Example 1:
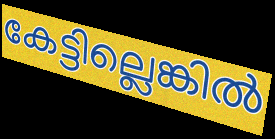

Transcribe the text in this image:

കേട്ടില്ലെങ്കിൽ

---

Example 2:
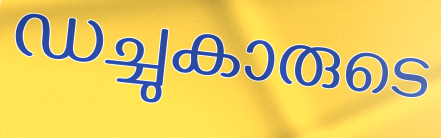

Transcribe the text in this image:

ഡച്ചുകാരുടെ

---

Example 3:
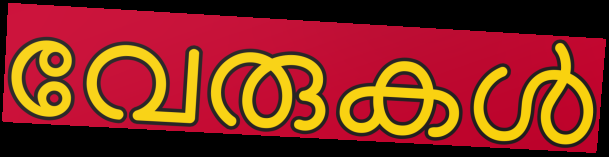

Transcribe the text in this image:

വേരുകൾ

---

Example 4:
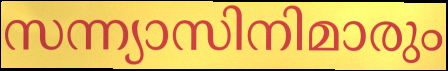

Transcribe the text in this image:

സന്ന്യാസിനിമാരും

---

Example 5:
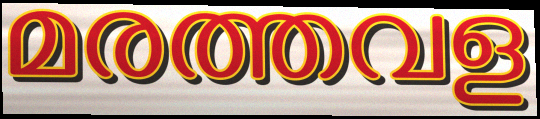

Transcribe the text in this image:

മരത്തവള